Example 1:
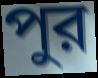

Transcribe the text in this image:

পুর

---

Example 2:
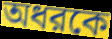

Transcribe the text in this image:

অধরকে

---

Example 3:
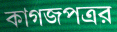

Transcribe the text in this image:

কাগজপত্রর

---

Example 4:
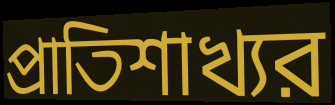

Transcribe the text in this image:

প্রাতিশাখ্যর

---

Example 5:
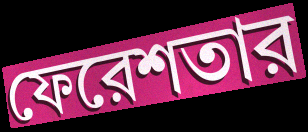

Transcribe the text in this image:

ফেরেশতার